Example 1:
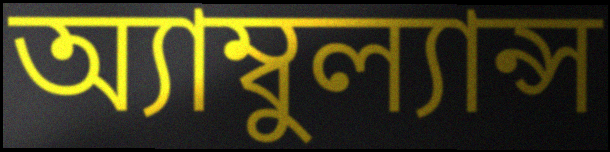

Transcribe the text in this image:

অ্যাম্বুল্যান্স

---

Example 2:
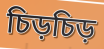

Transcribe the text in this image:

চিড়চিড়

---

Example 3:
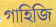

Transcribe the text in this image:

গাহিজি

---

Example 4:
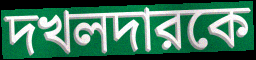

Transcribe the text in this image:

দখলদারকে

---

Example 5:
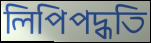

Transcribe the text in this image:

লিপিপদ্ধতি